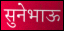
सुनेभाऊ